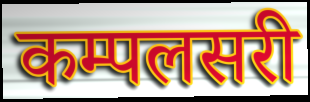
कम्पलसरी